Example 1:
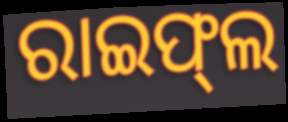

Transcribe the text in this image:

ରାଇଫ୍‌ଲ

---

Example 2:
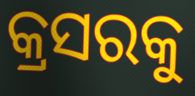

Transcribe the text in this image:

କ୍ରସରକୁ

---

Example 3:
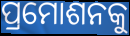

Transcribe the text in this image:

ପ୍ରମୋଶନକୁ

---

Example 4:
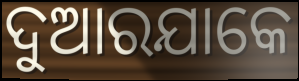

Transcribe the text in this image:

ଦୁଆରଯାକେ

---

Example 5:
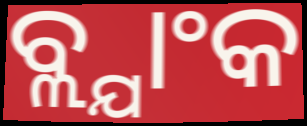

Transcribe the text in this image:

ବ୍ଲ୍ଯାଂକ